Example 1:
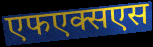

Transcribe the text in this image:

एफएक्सएस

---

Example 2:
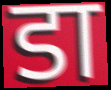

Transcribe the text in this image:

डा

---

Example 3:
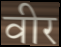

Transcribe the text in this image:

वीर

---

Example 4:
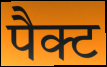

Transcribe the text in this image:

पैक्ट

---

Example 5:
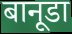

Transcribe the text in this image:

बानूडा